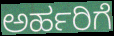
ಅರ್ಹರಿಗೆ